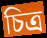
চিত্র